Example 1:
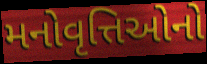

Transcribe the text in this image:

મનોવૃત્તિઓનો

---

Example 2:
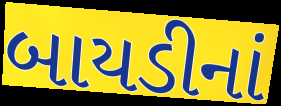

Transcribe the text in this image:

બાયડીનાં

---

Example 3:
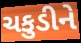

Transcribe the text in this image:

ચકુડીને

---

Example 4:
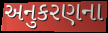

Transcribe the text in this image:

અનુકરણના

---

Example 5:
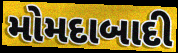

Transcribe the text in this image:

મોમદાબાદી